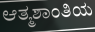
ಆತ್ಮಶಾಂತಿಯ